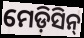
ମେଡ଼ିସିନ୍